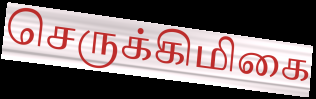
செருக்கிமிகை